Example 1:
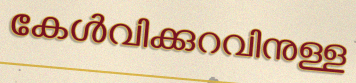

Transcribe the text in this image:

കേൾവിക്കുറവിനുള്ള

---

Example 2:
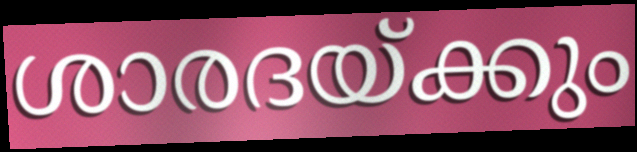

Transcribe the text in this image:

ശാരദയ്ക്കും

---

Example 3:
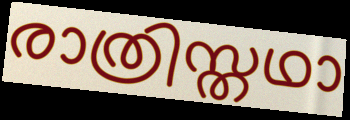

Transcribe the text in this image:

രാത്രിസ്തഥാ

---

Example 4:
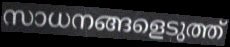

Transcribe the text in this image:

സാധനങ്ങളെടുത്ത്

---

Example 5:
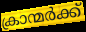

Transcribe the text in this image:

ക്രാന്മർക്ക്